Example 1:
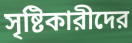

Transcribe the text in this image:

সৃষ্টিকারীদের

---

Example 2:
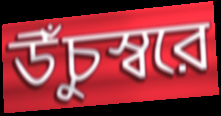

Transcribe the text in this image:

উঁচুস্বরে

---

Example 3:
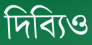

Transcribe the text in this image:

দিব্যিও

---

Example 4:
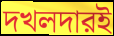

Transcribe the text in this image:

দখলদারই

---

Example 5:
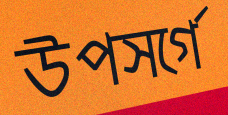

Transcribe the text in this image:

উপসর্গে